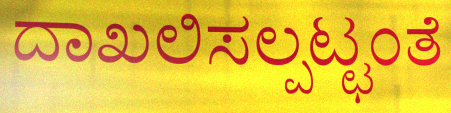
ದಾಖಲಿಸಲ್ಪಟ್ಟಂತೆ